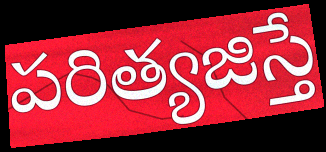
పరిత్యజిస్తే